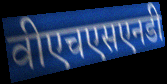
वीएचएसएनडी